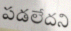
పడలేదని